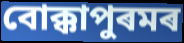
বোক্কাপুৰমৰ